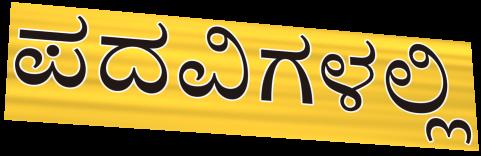
ಪದವಿಗಳಲ್ಲಿ